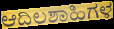
ಆದಿಲಶಾಹಿಗಳ